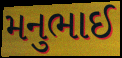
મનુભાઈ